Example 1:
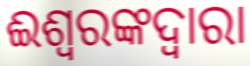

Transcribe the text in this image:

ଈଶ୍ୱରଙ୍କଦ୍ୱାରା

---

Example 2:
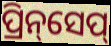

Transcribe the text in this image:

ପ୍ରିନ୍‌ସେପ୍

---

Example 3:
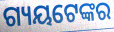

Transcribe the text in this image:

ଗ୍ୟୟଟେଙ୍କର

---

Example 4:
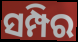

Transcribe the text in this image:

ସମ୍ପିର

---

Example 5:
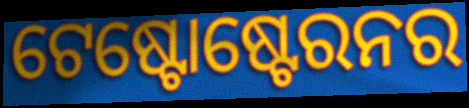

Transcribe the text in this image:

ଟେଷ୍ଟୋଷ୍ଟେରନର